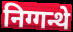
निग्गन्थे